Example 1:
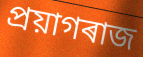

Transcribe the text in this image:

প্ৰয়াগৰাজ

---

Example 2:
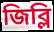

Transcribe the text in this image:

জিব্লি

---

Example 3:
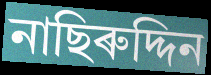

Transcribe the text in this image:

নাছিৰুদ্দিন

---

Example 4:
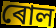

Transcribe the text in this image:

ৰোল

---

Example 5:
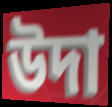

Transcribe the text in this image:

উদা